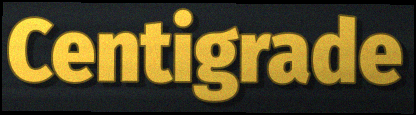
Centigrade